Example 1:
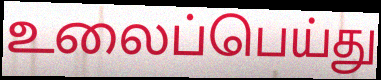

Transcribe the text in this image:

உலைப்பெய்து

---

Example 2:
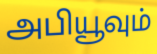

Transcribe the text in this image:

அபியூவும்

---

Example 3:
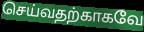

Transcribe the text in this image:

செய்வதற்காகவே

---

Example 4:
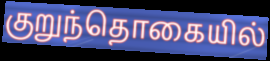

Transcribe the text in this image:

குறுந்தொகையில்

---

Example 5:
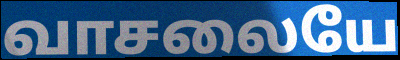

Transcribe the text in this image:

வாசலையே